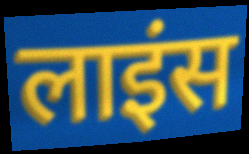
लाइंस